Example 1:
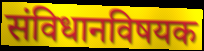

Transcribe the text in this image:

संविधानविषयक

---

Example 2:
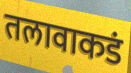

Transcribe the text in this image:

तलावाकडं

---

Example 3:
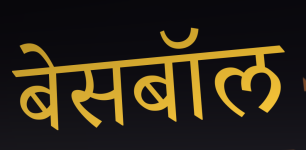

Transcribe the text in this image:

बेसबॉल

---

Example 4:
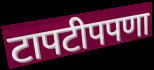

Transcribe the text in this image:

टापटीपपणा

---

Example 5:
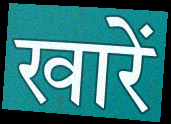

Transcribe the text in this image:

खारें